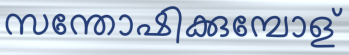
സന്തോഷിക്കുമ്പോള്